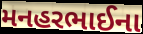
મનહરભાઈના